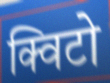
क्विटो